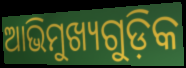
ଆଭିମୁଖ୍ୟଗୁଡ଼ିକ